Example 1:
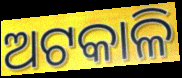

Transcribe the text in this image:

ଅଟକାଳି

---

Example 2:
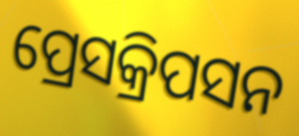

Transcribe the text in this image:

ପ୍ରେସକ୍ରିପସନ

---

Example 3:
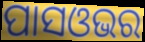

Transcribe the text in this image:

ପାସଓଭର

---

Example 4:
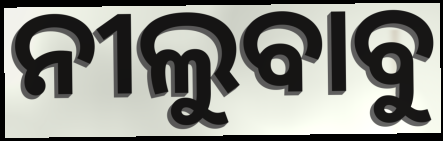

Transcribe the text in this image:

ନୀଲୁବାବୁ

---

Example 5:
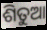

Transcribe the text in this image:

ଶିତୁଆ